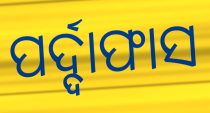
ପର୍ଦ୍ଦାଫାସ